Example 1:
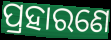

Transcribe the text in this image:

ପ୍ରହାରଣେ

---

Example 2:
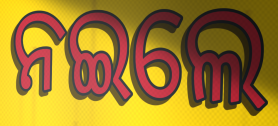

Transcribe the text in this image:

ନଇଲେ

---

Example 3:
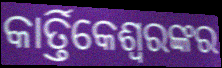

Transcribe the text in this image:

କାର୍ତ୍ତିକେଶ୍ୱରଙ୍କର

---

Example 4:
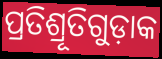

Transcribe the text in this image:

ପ୍ରତିଶ୍ରୂତିଗୁଡ଼ାକ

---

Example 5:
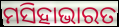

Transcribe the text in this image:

ମସିହାଭାରତ